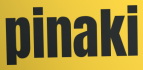
pinaki